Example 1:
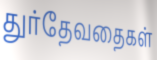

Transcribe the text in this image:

துர்தேவதைகள்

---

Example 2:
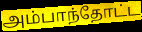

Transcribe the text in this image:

அம்பாந்தோட்ட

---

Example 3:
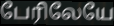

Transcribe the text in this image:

பேரிலேயே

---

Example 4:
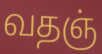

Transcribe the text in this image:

வதஞ்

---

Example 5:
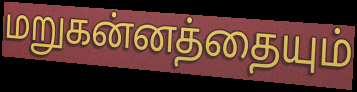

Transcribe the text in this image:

மறுகன்னத்தையும்